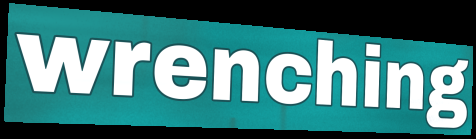
wrenching